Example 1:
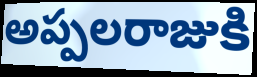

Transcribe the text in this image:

అప్పలరాజుకి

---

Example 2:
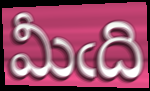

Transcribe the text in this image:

మీఁది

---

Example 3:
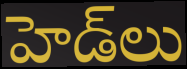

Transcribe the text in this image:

హెడ్‌లు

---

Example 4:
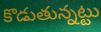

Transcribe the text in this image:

కొడుతున్నట్టు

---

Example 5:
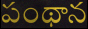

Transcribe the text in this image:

పంథాన